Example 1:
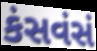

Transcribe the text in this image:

કંસવંસં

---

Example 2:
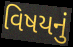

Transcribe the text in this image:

વિષયનું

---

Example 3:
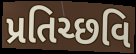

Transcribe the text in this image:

પ્રતિચ્છવિ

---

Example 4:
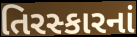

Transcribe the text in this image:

તિરસ્કારનાં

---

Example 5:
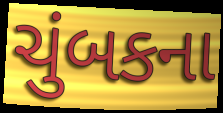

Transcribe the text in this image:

ચુંબકના